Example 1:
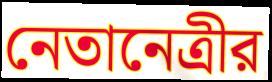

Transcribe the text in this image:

নেতানেত্রীর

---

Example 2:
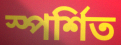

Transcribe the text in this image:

স্পর্শিত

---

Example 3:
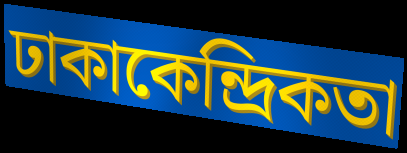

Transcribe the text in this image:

ঢাকাকেন্দ্রিকতা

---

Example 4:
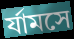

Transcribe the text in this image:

র্যামসে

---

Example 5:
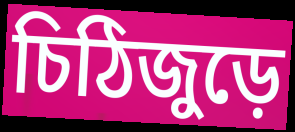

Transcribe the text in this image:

চিঠিজুড়ে